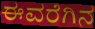
ಈವರೆಗಿನ